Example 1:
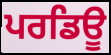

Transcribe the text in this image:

ਪਰਡਿਊ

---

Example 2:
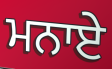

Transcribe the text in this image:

ਮਨਾਏ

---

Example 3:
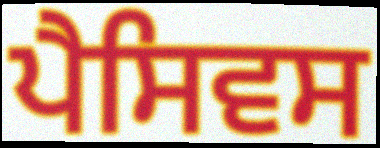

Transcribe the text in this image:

ਪੈਸਿਵਸ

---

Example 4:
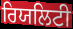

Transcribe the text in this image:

ਰਿਯਲਿਟੀ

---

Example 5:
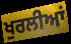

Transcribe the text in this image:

ਖੁਰਲੀਆਂ